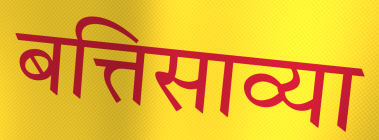
बत्तिसाव्या